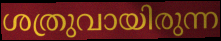
ശത്രുവായിരുന്ന